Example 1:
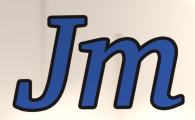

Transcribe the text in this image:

Jm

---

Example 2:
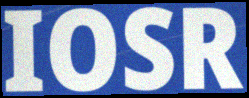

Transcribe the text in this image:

IOSR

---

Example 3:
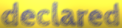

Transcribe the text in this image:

declared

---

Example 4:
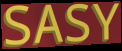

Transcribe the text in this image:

SASY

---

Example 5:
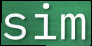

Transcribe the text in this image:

sim